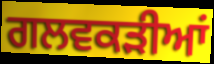
ਗਲਵਕੜੀਆਂ